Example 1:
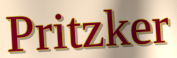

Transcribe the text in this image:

Pritzker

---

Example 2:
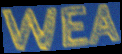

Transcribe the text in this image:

WEA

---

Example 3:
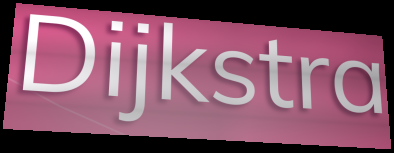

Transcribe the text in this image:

Dijkstra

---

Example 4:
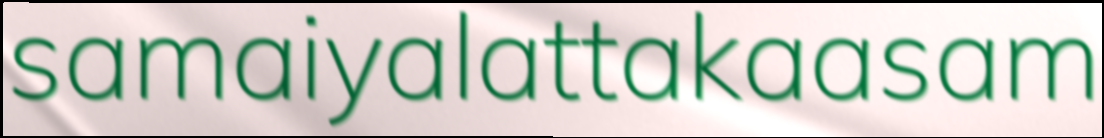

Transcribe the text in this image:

samaiyalattakaasam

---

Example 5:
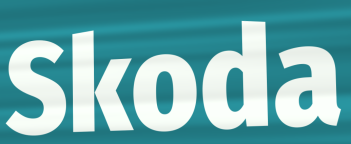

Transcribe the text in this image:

Skoda